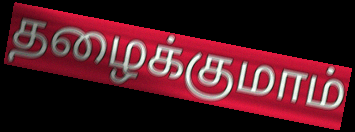
தழைக்குமாம்